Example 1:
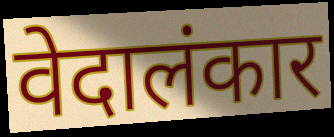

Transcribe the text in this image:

वेदालंकार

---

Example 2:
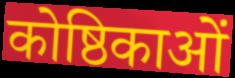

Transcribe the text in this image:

कोष्ठिकाओं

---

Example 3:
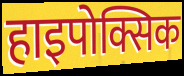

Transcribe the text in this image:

हाइपोक्सिक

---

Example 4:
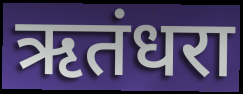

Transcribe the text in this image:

ऋतंधरा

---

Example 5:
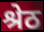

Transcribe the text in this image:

श्रेठ